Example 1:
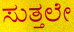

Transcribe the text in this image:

ಸುತ್ತಲೇ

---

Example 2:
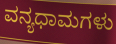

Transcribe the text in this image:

ವನ್ಯಧಾಮಗಳು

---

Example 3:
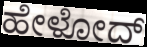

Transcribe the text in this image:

ಹೇಳೋದ್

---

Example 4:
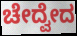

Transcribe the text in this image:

ಚೇದ್ವೇದ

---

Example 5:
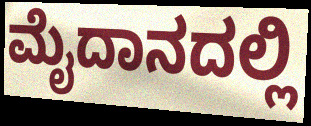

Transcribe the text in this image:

ಮೈದಾನದಲ್ಲಿ